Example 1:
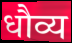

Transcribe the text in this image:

धौव्य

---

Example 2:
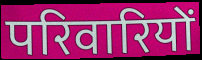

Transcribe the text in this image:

परिवारियों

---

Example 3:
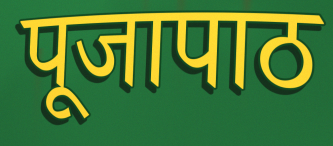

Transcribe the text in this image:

पूजापाठ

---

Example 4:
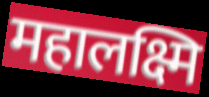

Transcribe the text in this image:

महालक्ष्मि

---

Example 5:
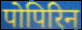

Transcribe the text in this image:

पोपिरिन